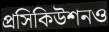
প্রসিকিউশনও